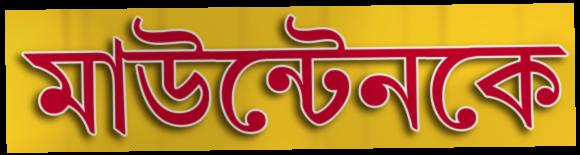
মাউন্টেনকে